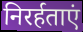
निरर्हताएं